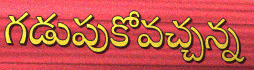
గడుపుకోవచ్చన్న